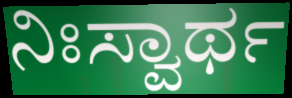
ನಿಃಸ್ವಾರ್ಥ